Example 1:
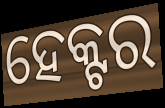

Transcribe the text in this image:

ହେକ୍ଟର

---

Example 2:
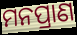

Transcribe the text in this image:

ମନପ୍ରାଣ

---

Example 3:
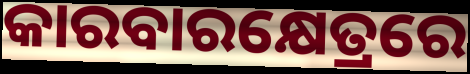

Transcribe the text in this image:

କାରବାରକ୍ଷେତ୍ରରେ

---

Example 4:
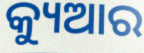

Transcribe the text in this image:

କ୍ୟୁଆର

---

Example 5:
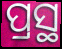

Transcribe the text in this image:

ପ୍ରସ୍ଥ